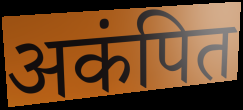
अकंपित